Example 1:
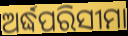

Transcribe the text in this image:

ଅର୍ଦ୍ଧପରିସୀମା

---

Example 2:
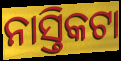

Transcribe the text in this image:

ନାସ୍ତିକଟା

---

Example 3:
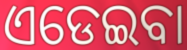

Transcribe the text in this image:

ଏଡେଇବା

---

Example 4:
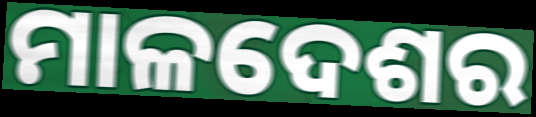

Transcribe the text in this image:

ମାଳଦେଶର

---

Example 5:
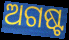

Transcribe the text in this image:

ଅଗଷ୍ଟ